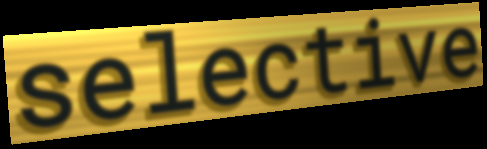
selective